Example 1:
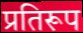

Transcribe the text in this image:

प्रतिरूप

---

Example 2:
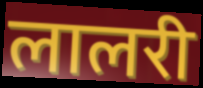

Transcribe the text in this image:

लालरी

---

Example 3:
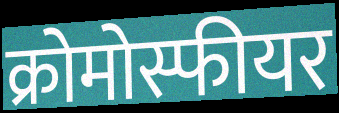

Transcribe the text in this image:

क्रोमोस्फीयर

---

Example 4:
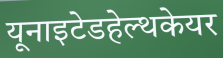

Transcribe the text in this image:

यूनाइटेडहेल्थकेयर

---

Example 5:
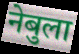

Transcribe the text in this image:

नेबुला